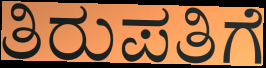
ತಿರುಪತಿಗೆ